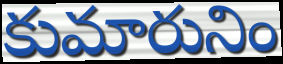
కుమారునిం